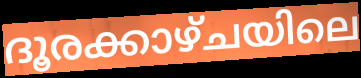
ദൂരക്കാഴ്ചയിലെ